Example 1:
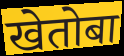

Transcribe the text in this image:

खेतोबा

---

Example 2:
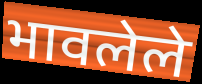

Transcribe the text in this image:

भावलेले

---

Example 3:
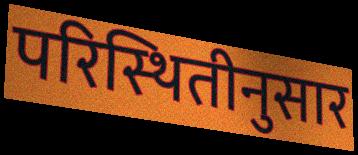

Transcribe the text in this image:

परिस्थितीनुसार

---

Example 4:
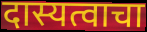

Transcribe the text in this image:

दास्यत्वाचा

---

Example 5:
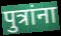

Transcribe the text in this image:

पुत्रांना